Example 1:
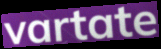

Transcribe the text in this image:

vartate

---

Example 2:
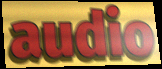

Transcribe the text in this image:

audio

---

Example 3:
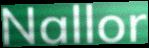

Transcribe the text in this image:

Nallor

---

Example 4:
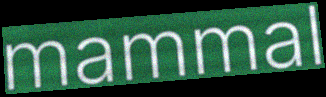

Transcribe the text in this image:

mammal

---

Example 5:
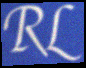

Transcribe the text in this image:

RL